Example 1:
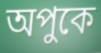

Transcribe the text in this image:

অপুকে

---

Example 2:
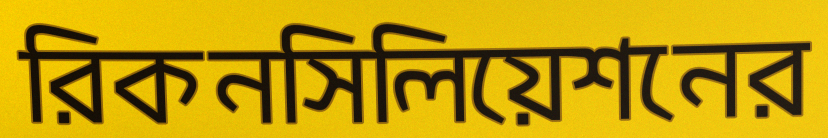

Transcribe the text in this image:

রিকনসিলিয়েশনের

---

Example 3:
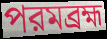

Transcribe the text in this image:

পরমব্রহ্ম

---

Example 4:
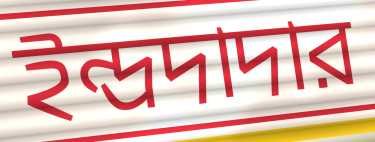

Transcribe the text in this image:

ইন্দ্রদাদার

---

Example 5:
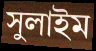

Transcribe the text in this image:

সুলাইম